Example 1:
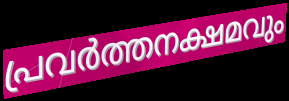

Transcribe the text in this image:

പ്രവർത്തനക്ഷമവും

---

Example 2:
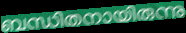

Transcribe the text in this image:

ബന്ധിതനായിരുന്നു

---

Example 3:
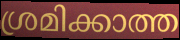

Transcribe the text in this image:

ശ്രമിക്കാത്ത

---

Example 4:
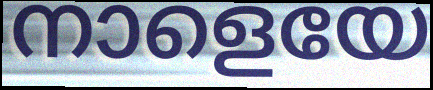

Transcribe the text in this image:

നാളെയേ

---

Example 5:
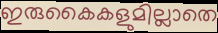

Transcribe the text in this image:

ഇരുകൈകളുമില്ലാതെ